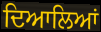
ਦਿਆਲਿਆਂ